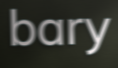
bary